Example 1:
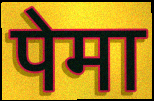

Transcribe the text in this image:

पेमा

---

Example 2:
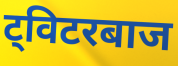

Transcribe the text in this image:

ट्विटरबाज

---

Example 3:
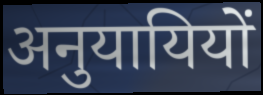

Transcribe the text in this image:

अनुयायियों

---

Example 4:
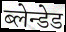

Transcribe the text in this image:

ब्लेन्डेड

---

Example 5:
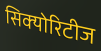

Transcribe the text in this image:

सिक्योरिटीज